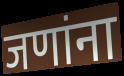
जणांना